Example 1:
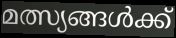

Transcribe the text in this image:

മത്സ്യങ്ങൾക്ക്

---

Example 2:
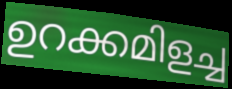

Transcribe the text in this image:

ഉറക്കമിളച്ച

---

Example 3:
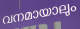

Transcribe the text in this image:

വനമായാലും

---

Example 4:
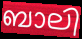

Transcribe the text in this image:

ബാലി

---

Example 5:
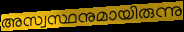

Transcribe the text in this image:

അസ്വസ്ഥനുമായിരുന്നു